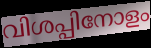
വിശപ്പിനോളം